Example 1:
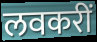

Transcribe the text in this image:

लवकरीं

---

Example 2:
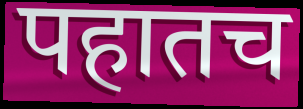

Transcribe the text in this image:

पहातच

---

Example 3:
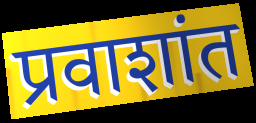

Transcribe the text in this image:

प्रवाशांत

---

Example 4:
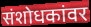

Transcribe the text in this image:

संशोधकांवर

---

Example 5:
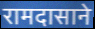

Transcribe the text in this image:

रामदासाने